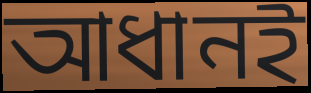
আধানই